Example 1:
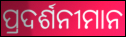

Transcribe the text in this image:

ପ୍ରଦର୍ଶନୀମାନ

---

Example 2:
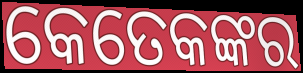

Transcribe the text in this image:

କେତେକଙ୍କର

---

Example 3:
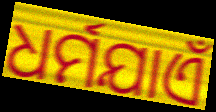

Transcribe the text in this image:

ଧର୍ମଯାଏଁ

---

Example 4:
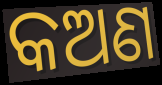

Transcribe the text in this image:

କଅଣ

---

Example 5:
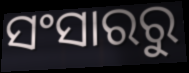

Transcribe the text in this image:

ସଂସାରରୁ